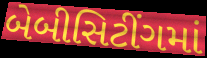
બેબીસિટીંગમાં